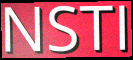
NSTI